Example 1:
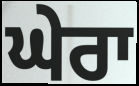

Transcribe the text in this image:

ਘੇਰਾ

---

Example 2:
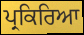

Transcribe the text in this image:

ਪ੍ਰਕਿਰਿਆ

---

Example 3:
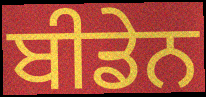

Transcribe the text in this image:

ਬੀਡੇਨ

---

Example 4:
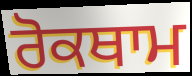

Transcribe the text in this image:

ਰੋਕਥਾਮ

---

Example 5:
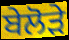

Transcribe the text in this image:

ਬੇਲੋੜੇ